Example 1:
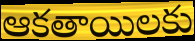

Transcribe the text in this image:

ఆకతాయిలకు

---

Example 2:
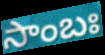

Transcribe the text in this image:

సాంబః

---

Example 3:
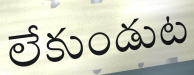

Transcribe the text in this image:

లేకుండుట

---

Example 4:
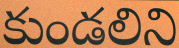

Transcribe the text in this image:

కుండలిని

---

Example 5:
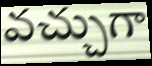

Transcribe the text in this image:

వచ్చుగా